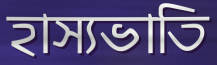
হাস্যভাতি